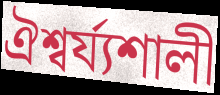
ঐশ্বর্য্যশালী